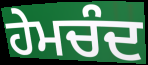
ਹੇਮਚੰਦ